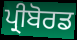
ਪ੍ਰੀਬੋਰਡ